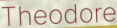
Theodore